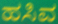
ಹಸಿವ